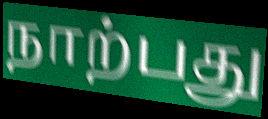
நாற்பது